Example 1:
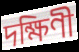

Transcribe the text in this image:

দক্ষিণী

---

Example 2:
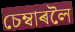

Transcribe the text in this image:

চেম্বাৰলৈ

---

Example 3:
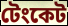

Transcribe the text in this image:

টেংকেট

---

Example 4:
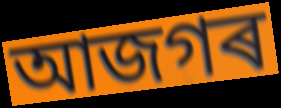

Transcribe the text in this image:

আজগৰ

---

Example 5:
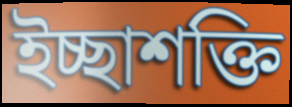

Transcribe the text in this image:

ইচ্ছাশক্তি